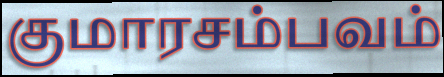
குமாரசம்பவம்